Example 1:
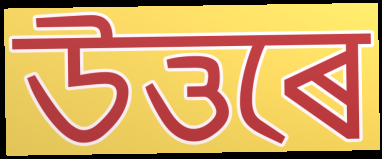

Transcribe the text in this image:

উত্তৰে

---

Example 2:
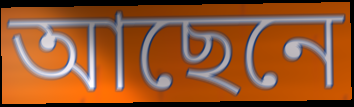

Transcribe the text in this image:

আছেনে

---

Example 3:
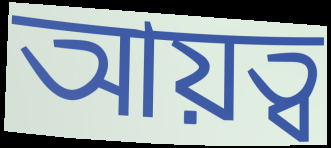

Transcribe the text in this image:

আয়ত্ব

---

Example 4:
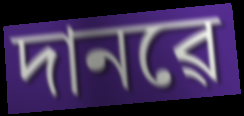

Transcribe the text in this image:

দানৱে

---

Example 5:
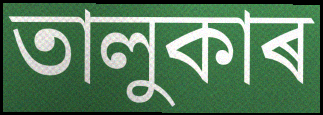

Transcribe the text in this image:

তালুকাৰ